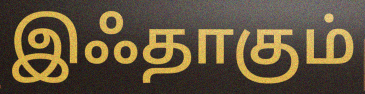
இஃதாகும்